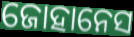
ଜୋହାନେସ